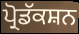
ਪ੍ਰੋਡੱਕਸ਼ਨ